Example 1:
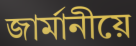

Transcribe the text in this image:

জাৰ্মানীয়ে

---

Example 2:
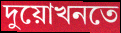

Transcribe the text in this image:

দুয়োখনতে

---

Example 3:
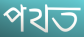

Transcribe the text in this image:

পথত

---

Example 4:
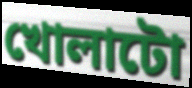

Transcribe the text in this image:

খোলাটো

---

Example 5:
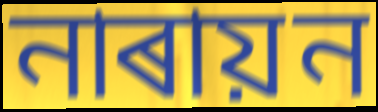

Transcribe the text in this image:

নাৰায়ন